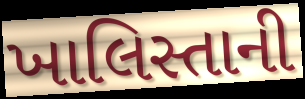
ખાલિસ્તાની